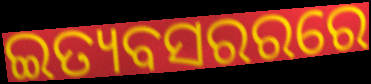
ଇତ୍ୟବସରରରେ